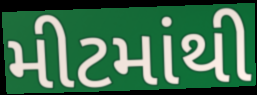
મીટમાંથી